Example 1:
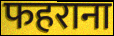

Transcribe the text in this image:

फहराना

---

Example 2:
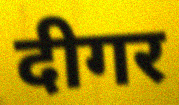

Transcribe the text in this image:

दीगर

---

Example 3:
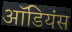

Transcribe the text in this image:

ऑडियंस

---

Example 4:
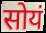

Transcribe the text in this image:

सोयं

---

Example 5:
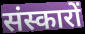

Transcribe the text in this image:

संस्कारों